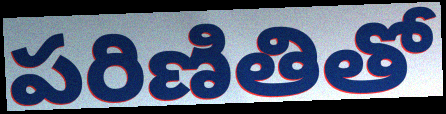
పరిణితితో